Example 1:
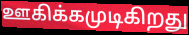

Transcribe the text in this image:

ஊகிக்கமுடிகிறது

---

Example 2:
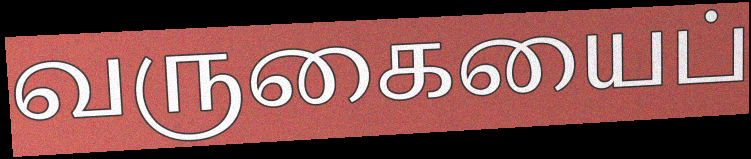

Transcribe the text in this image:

வருகையைப்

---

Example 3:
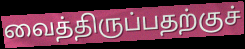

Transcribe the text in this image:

வைத்திருப்பதற்குச்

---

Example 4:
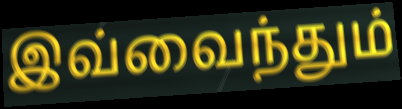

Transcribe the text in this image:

இவ்வைந்தும்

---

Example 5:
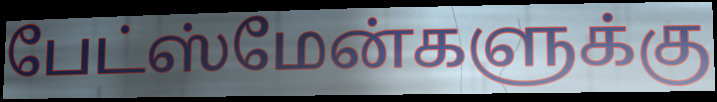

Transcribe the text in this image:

பேட்ஸ்மேன்களுக்கு